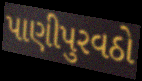
પાણીપુરવઠો